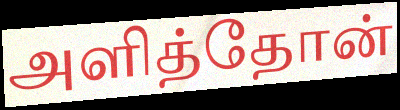
அளித்தோன்